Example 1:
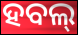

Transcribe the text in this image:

ହବଲ୍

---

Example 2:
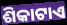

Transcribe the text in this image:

ଶିକାଟାଏ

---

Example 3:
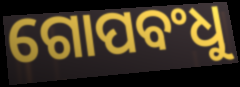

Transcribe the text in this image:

ଗୋପବଂଧୁ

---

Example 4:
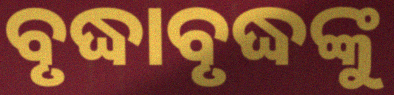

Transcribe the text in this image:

ବୃଦ୍ଧାବୃଦ୍ଧଙ୍କୁ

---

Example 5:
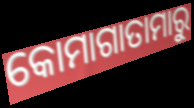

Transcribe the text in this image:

କୋମାଗାତାମାରୁ